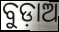
ବୁଡ଼ାଅ